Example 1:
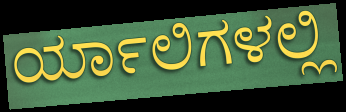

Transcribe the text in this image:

ರ್ಯಾಲಿಗಳಲ್ಲಿ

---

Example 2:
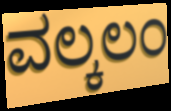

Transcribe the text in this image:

ವಲ್ಕಲಂ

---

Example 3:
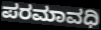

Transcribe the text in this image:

ಪರಮಾವಧಿ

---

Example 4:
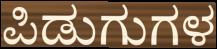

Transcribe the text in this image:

ಪಿಡುಗುಗಳ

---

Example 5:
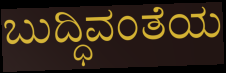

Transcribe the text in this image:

ಬುದ್ಧಿವಂತೆಯ